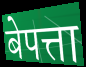
बेपत्ता